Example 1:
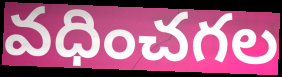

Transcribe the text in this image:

వధించగల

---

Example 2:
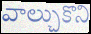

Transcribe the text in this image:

వాల్చుకొని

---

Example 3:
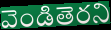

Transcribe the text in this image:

వెండితెరని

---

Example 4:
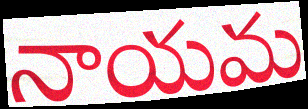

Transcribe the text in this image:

నాయమ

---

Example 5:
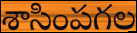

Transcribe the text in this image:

శాసింపగల